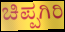
ಚಿಪ್ಪಗಿರಿ